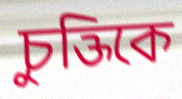
চুক্তিকে